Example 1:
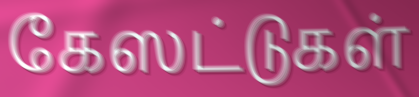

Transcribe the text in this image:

கேஸட்டுகள்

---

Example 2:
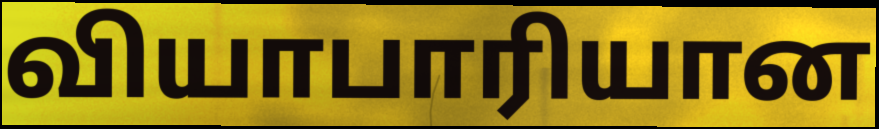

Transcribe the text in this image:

வியாபாரியான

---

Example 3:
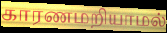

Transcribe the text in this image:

காரணமறியாமல்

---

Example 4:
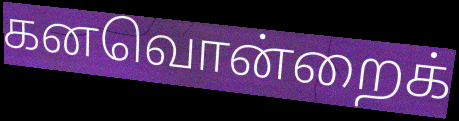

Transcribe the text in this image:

கனவொன்றைக்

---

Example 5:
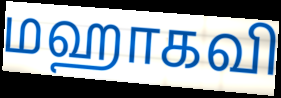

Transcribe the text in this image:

மஹாகவி